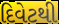
દિવેટથી